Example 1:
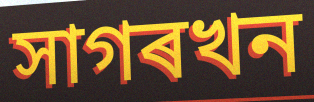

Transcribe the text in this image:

সাগৰখন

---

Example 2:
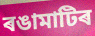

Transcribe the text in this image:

ৰঙামাটিৰ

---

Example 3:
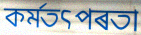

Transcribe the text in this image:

কৰ্মতৎপৰতা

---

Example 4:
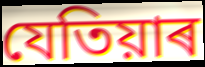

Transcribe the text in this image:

যেতিয়াৰ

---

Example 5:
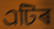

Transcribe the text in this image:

এটিৰ